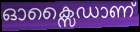
ഓക്സൈഡാണ്